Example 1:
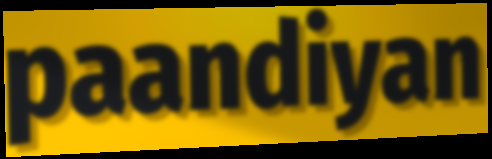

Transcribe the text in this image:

paandiyan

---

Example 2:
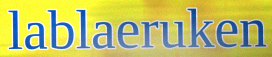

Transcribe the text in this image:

lablaeruken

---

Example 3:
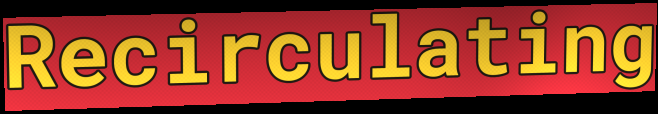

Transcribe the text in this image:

Recirculating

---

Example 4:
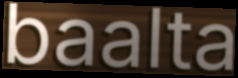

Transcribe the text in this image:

baalta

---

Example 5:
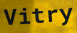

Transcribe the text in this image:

Vitry